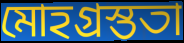
মোহগ্রস্ততা